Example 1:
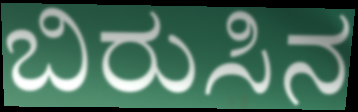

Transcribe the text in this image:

ಬಿರುಸಿನ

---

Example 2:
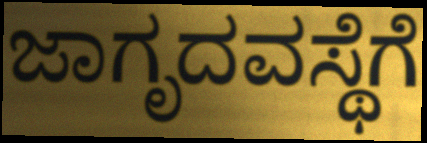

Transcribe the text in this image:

ಜಾಗೃದವಸ್ಥೆಗೆ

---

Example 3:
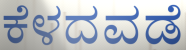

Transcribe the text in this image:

ಕೆಳದವಡೆ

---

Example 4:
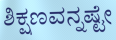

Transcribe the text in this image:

ಶಿಕ್ಷಣವನ್ನಷ್ಟೇ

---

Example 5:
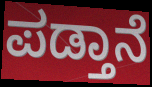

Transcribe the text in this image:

ಪಡ್ತಾನೆ